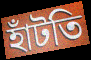
হাঁটতি